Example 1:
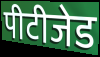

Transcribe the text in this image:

पीटीजेड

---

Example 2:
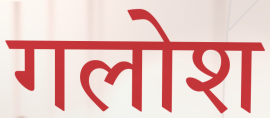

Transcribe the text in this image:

गलोश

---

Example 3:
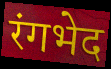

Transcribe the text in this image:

रंगभेद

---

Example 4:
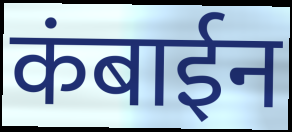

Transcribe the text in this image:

कंबाईन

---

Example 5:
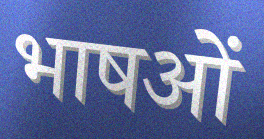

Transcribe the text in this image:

भाषओं